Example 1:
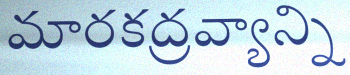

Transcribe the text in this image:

మారకద్రవ్యాన్ని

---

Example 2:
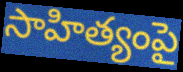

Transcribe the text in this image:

సాహిత్యంపై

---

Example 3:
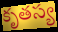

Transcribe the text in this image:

కృతస్య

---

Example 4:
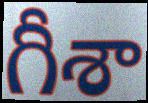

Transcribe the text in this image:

గీశా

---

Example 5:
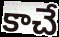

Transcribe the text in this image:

కాచే